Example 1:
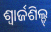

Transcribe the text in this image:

ଶ୍ୱାର୍ଜଶିଲ୍ଡ୍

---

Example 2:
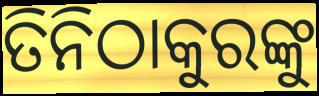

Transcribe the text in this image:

ତିନିଠାକୁରଙ୍କୁ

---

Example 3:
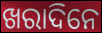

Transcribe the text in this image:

ଖରାଦିନେ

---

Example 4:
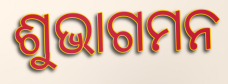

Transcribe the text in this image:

ଶୁଭାଗମନ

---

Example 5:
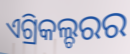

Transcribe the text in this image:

ଏଗ୍ରିକଲ୍ଚରର